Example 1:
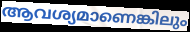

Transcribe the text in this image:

ആവശ്യമാണെങ്കിലും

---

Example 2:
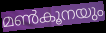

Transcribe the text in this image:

മൺകൂനയും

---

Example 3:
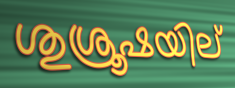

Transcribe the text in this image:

ശുശ്രൂഷയില്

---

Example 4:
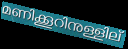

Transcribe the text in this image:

മണിക്കൂറിനുള്ളില്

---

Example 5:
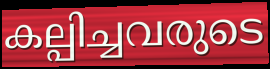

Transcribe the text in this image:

കല്പിച്ചവരുടെ